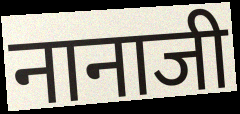
नानाजी